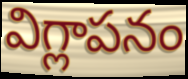
విగ్లాపనం